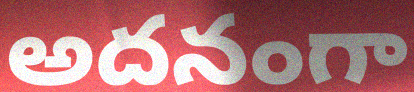
అదనంగా